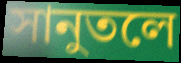
সানুতলে